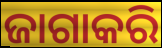
ଜାଗାକରି